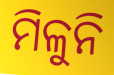
ମିଳୁନି